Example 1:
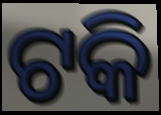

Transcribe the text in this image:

ଟକି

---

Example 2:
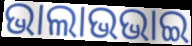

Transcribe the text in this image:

ଭାଲାଭଭାଇ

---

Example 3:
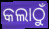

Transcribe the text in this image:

କଲାଠୁଁ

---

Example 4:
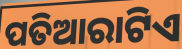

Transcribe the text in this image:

ପତିଆରାଟିଏ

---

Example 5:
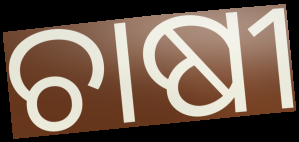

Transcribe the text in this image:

ଚାଷୀ